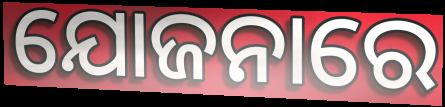
ଯୋଜନାରେ